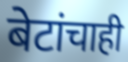
बेटांचाही